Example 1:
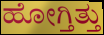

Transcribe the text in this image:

ಹೋಗ್ತಿತ್ತು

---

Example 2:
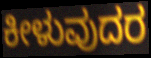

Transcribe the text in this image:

ಕೀಳುವುದರ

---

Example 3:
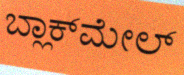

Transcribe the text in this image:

ಬ್ಲಾಕ್‌ಮೇಲ್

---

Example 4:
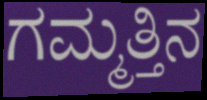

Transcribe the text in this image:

ಗಮ್ಮತ್ತಿನ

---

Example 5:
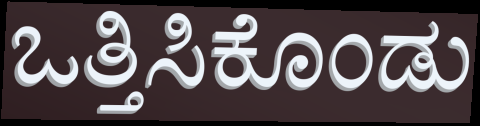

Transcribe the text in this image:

ಒತ್ತಿಸಿಕೊಂಡು